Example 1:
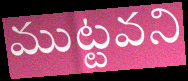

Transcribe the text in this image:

ముట్టవని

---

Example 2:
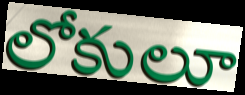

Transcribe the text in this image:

లోకులూ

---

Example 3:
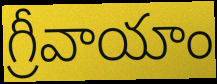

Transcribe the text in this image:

గ్రీవాయాం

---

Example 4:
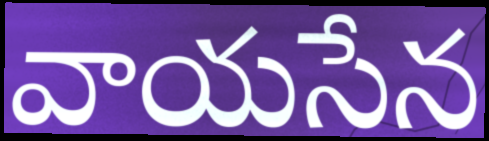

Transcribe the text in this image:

వాయసేన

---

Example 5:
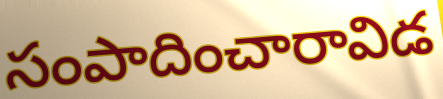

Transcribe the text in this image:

సంపాదించారావిడ